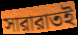
সারারাতই